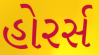
હોરર્સ